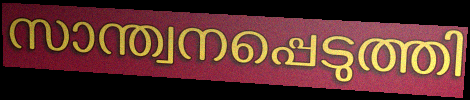
സാന്ത്വനപ്പെടുത്തി